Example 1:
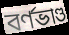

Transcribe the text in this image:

বর্ণভাণ্ড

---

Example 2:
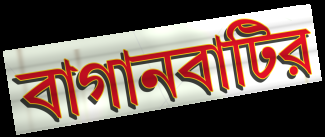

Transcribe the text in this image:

বাগানবাটির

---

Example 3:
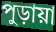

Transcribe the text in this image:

পুড়ায়া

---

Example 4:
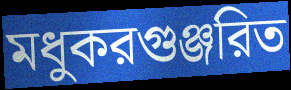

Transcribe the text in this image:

মধুকরগুঞ্জরিত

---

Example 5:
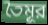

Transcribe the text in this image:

তৈমূর